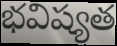
భవిష్యత